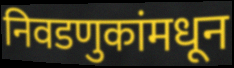
निवडणुकांमधून